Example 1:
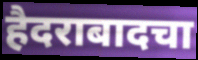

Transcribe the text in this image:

हैदराबादचा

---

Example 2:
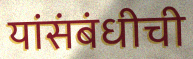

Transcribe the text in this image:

यांसंबंधीची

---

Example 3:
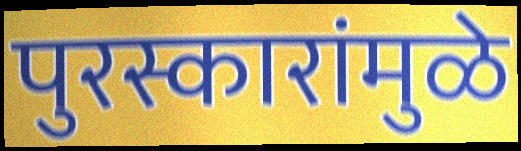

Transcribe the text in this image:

पुरस्कारांमुळे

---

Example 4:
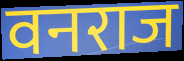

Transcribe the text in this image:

वनराज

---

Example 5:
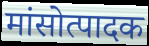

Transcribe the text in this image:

मांसोत्पादक